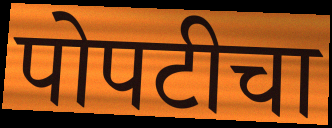
पोपटीचा